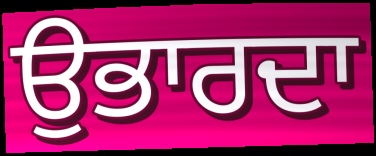
ਉਭਾਰਦਾ